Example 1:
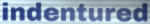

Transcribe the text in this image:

indentured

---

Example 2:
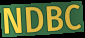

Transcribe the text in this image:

NDBC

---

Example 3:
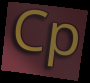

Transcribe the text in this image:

Cp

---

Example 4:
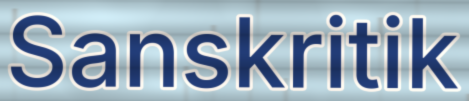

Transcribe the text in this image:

Sanskritik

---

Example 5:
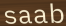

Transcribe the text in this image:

saab